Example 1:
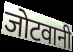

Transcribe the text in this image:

जोटवानी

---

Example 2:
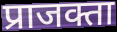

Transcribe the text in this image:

प्राजक्ता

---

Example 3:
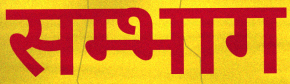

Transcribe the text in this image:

सम्भाग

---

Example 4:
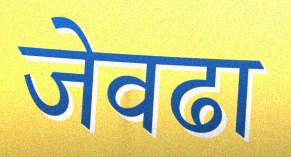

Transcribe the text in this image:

जेवढा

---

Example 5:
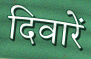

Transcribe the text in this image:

दिवारें